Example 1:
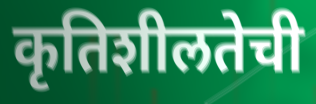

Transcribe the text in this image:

कृतिशीलतेची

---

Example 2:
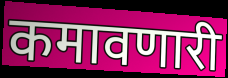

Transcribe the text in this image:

कमावणारी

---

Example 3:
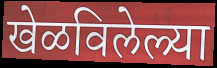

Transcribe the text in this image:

खेळविलेल्या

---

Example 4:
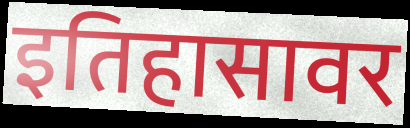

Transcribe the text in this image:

इतिहासावर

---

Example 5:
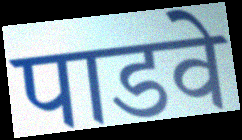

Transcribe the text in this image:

पाडवे